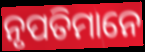
ନୃପତିମାନେ